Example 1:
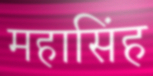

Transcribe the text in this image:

महासिंह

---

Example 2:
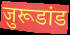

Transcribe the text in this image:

जुरूडांड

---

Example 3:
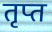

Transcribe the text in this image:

तृप्त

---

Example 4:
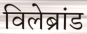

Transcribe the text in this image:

विलेब्रांड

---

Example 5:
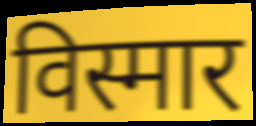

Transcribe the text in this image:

विस्मार